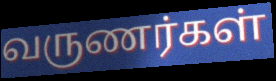
வருணர்கள்